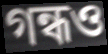
গন্ধও